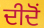
ਦੀਦੋਂ